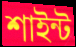
শাইন্ট